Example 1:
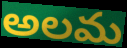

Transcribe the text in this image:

అలమ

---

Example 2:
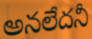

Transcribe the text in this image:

అనలేదనీ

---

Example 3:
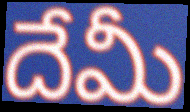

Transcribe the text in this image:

దేమీ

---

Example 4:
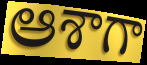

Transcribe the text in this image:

ఆశాగా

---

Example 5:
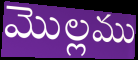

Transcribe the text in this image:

మొల్లము